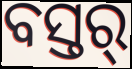
ବସ୍ତର୍